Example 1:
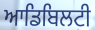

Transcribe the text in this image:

ਆਡਿਬਿਲਟੀ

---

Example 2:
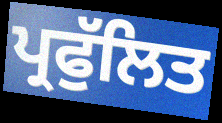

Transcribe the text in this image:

ਪ੍ਰਫੁੱਲਿਤ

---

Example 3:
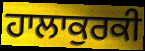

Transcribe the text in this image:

ਹਾਲਾਕੁਰਕੀ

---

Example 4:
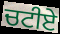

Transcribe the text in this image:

ਚਟੀਏ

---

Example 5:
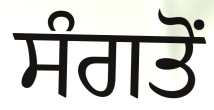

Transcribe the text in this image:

ਸੰਗਤੋਂ